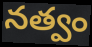
నత్వం